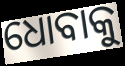
ଧୋବାକୁ